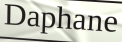
Daphane